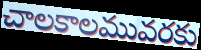
చాలకాలమువరకు